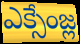
ఎక్సేంజ్ల